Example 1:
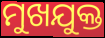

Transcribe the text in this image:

ମୁଖଯୁକ୍ତ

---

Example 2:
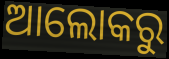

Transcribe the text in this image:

ଆଲୋକରୁ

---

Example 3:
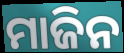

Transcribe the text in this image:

ମାଜିନ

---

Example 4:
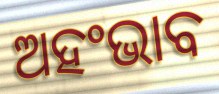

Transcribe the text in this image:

ଅହଂଭାବ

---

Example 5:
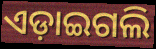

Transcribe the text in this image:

ଏଡ଼ାଇଗଲି